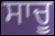
ਸਾਚੂ